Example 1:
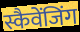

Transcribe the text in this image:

स्कैवेंजिंग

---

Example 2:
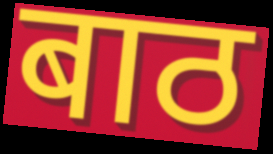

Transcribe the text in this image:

बाठ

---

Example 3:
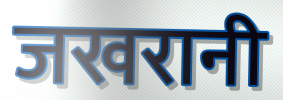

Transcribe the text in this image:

जखरानी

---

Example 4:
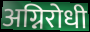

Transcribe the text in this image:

अग्निरोधी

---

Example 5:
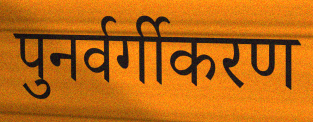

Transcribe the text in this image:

पुनर्वर्गीकरण